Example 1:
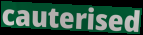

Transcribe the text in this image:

cauterised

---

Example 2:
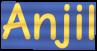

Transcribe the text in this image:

Anjil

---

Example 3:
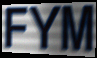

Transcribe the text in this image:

FYM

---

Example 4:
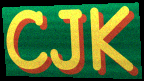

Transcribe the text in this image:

CJK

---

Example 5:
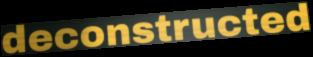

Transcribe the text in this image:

deconstructed